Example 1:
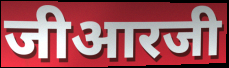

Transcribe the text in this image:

जीआरजी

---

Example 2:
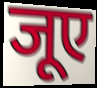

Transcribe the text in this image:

जूए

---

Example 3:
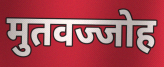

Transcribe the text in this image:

मुतवज्जोह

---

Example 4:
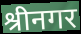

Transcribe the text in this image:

श्रीनगर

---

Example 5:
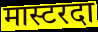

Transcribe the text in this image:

मास्टरदा